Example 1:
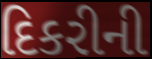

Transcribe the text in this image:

દિકરીની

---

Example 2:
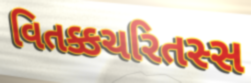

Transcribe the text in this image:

વિતક્કચરિતસ્સ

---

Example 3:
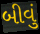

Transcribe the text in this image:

બીવું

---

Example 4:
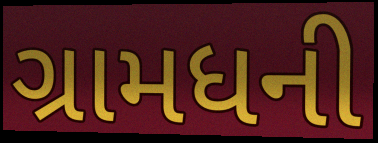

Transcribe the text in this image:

ગ્રામધની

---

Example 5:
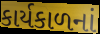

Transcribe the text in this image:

કાર્યકાળનાં